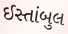
ઈસ્તાંબુલ